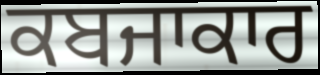
ਕਬਜਾਕਾਰ